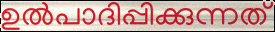
ഉൽപാദിപ്പിക്കുന്നത്